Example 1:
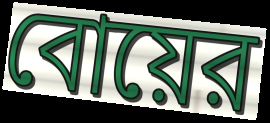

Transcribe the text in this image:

বোয়ের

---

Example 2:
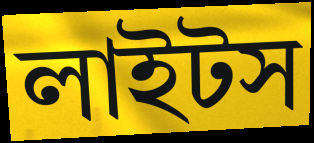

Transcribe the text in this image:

লাইটস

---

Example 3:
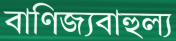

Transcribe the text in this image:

বাণিজ্যবাহুল্য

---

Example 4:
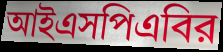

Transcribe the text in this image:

আইএসপিএবির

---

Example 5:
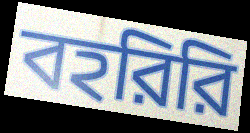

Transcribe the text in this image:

বহরিরি